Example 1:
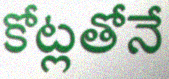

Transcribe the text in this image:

కోట్లతోనే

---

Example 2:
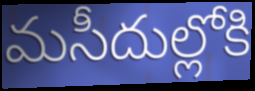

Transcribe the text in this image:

మసీదుల్లోకి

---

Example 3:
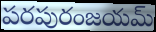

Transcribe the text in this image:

పరపురంజయమ్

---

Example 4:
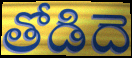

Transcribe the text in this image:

తోడిదె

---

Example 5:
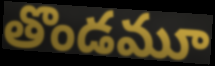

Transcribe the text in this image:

తొండమూ